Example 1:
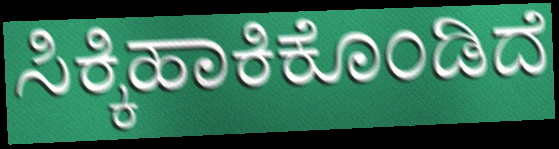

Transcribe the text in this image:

ಸಿಕ್ಕಿಹಾಕಿಕೊಂಡಿದೆ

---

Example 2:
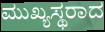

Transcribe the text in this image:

ಮುಖ್ಯಸ್ಥರಾದ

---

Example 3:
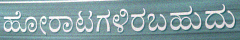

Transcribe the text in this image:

ಹೋರಾಟಗಳಿರಬಹುದು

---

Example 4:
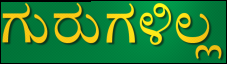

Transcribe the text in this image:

ಗುರುಗಳಿಲ್ಲ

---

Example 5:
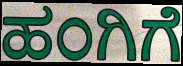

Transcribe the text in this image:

ಹಂಗಿಗೆ